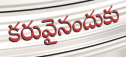
కరువైనందుకు